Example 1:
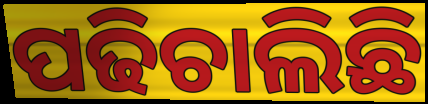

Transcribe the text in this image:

ପଢିଚାଲିଛି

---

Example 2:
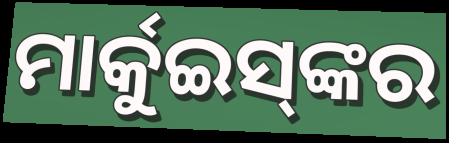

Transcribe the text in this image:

ମାର୍କୁଇସ୍‍ଙ୍କର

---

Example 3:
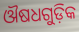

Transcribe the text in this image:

ଔଷଧଗୁଡ଼ିକ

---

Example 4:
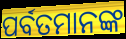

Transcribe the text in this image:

ପର୍ବତମାନଙ୍କ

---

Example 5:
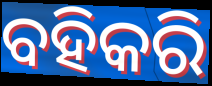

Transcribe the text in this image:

ବହିକରି